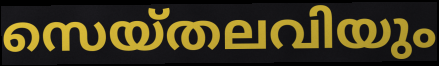
സെയ്തലവിയും